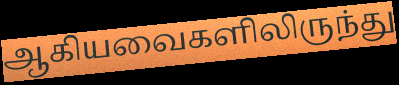
ஆகியவைகளிலிருந்து